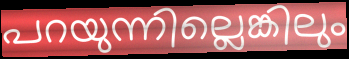
പറയുന്നില്ലെങ്കിലും